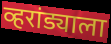
व्हरांड्याला